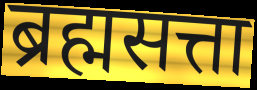
ब्रह्मसत्ता